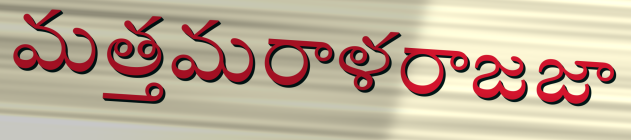
మత్తమరాళరాజజా